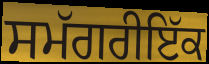
ਸਮੱਗਰੀਇੱਕ